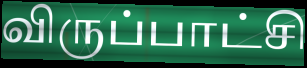
விருப்பாட்சி